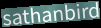
sathanbird